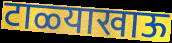
टाळ्याखाऊ